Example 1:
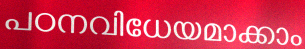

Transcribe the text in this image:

പഠനവിധേയമാക്കാം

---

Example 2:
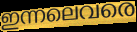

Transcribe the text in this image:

ഇന്നലെവരെ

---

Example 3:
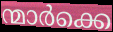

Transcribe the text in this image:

ന്മാർക്കെ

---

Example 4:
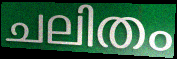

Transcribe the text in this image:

ചലിതം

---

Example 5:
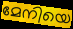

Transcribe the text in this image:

മേനിയെ